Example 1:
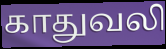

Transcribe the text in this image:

காதுவலி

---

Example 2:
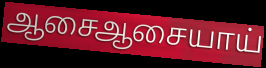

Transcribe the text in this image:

ஆசைஆசையாய்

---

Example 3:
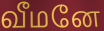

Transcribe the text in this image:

வீமனே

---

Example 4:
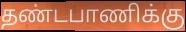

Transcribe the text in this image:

தண்டபாணிக்கு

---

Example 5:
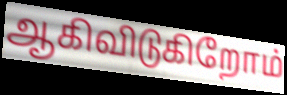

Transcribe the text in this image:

ஆகிவிடுகிறோம்